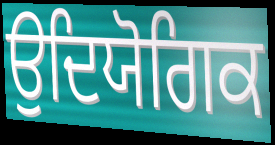
ਉਦਿਯੋਗਿਕ